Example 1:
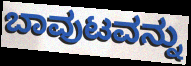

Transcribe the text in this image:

ಬಾವುಟವನ್ನು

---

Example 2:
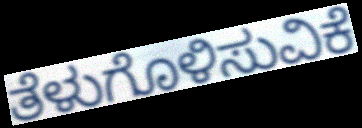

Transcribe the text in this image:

ತೆಳುಗೊಳಿಸುವಿಕೆ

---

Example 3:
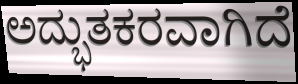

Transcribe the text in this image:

ಅದ್ಭುತಕರವಾಗಿದೆ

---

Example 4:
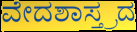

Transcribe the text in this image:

ವೇದಶಾಸ್ತ್ರದ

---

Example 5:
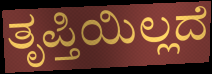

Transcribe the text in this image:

ತೃಪ್ತಿಯಿಲ್ಲದೆ